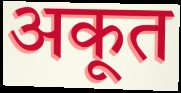
अकूत